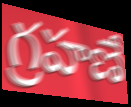
గ్రహణే